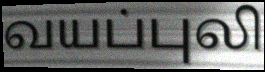
வயப்புலி